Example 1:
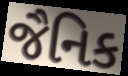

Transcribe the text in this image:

જૈનિક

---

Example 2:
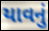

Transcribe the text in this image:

યાવનું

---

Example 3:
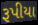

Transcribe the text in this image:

રૂપીયા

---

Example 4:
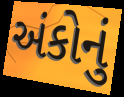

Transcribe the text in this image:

અંકોનું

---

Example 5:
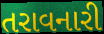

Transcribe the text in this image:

તરાવનારી